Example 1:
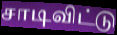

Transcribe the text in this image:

சாடிவிட்டு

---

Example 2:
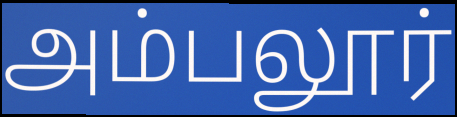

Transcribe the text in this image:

அம்பலூர்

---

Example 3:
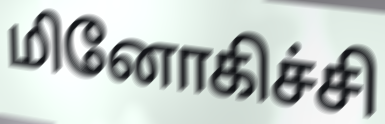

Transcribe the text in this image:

மினோகிச்சி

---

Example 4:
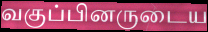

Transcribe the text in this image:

வகுப்பினருடைய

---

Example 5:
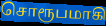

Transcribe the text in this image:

சொரூபமாகி